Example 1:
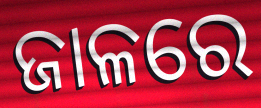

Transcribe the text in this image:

ଜାଳରେ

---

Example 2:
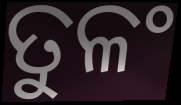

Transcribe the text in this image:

ତୁଳଂ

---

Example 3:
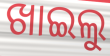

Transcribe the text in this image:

ଖାଇଲୁ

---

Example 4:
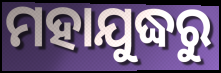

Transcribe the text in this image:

ମହାଯୁଦ୍ଧରୁ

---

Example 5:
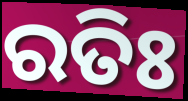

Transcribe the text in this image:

ରତିଃ